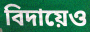
বিদায়েও